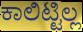
ಕಾಲಿಟ್ಟಿಲ್ಲ